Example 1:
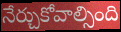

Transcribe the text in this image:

నేర్చుకోవాల్సింది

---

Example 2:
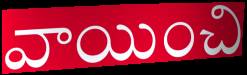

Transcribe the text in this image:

వాయించి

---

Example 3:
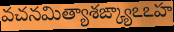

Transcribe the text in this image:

వచనమిత్యాశఙ్క్యాఽఽహ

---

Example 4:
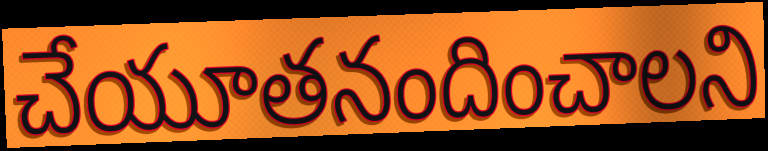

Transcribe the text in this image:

చేయూతనందించాలని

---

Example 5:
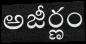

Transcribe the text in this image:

అజీర్ణం